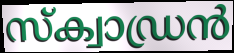
സ്ക്വാഡ്രൻ